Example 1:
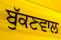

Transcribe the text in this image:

ਬੁੱਕਣਵਾਲ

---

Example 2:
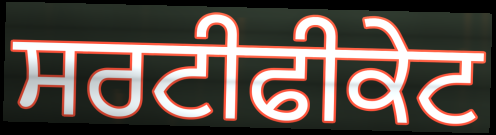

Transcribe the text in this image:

ਸਰਟੀਫੀਕੇਟ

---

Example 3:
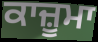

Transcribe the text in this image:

ਕਾਜ਼ੂਮਾ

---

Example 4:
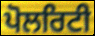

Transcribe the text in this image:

ਪੋਲਰਿਟੀ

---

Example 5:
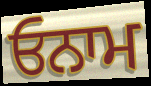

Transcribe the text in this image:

ਓਨਾਮ